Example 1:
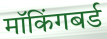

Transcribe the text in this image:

मॉकिंगबर्ड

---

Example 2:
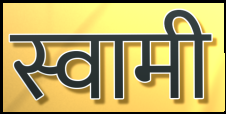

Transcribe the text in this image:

स्वामी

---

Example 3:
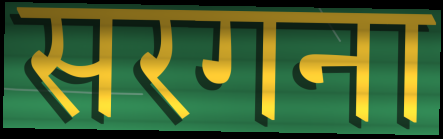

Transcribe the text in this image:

सरगना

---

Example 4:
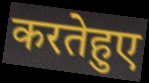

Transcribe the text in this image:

करतेहुए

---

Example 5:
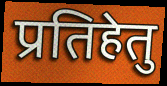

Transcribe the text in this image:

प्रतिहेतु